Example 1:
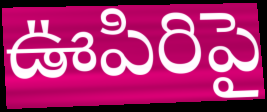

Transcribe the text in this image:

ఊపిరిపై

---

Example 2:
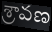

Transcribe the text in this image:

శ్రావణ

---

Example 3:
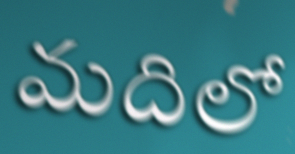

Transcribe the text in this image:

మదిలో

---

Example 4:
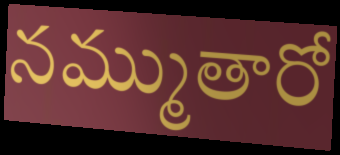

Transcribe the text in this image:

నమ్ముతారో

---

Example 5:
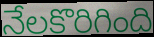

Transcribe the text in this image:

నేలకొరిగింది